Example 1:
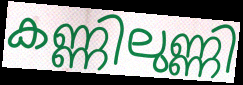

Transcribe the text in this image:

കണ്ണിലുണ്ണി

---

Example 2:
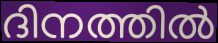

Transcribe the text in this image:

ദിനത്തിൽ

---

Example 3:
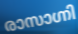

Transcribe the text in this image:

രാസാഗ്നി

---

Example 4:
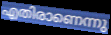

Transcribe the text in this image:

എതിരാണെന്നു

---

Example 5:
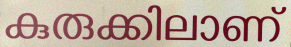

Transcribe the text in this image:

കുരുക്കിലാണ്